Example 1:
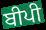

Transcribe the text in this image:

ਬੀਪੀ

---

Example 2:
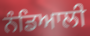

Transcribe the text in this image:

ਨੰਡਿਆਲੀ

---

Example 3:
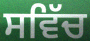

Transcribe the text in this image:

ਸਵਿੱਚ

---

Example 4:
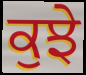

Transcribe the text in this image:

ਕੁਝੇ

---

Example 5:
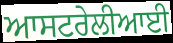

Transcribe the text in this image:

ਆਸਟਰੇਲੀਆਈ